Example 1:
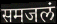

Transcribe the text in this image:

समजलं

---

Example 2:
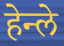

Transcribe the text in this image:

हेन्ले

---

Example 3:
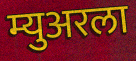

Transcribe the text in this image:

म्युअरला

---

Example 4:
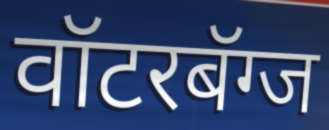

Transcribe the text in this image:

वॉटरबॅग्ज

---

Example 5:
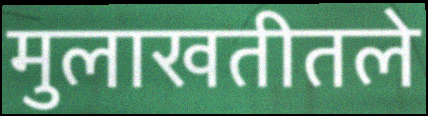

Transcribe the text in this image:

मुलाखतीतले